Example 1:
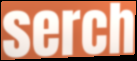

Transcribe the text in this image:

serch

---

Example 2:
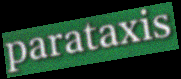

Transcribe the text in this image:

parataxis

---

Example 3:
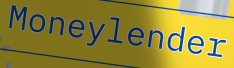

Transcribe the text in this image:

Moneylender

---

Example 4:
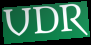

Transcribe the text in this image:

UDR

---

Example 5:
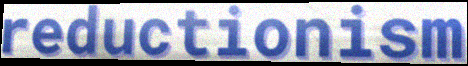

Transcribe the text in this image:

reductionism